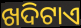
ଖଦିଟାଏ